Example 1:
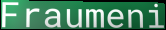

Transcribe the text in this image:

Fraumeni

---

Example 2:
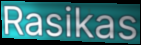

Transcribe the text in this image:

Rasikas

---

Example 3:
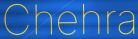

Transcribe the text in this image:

Chehra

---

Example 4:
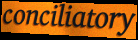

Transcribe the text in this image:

conciliatory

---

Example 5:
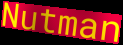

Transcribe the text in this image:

Nutman